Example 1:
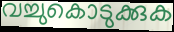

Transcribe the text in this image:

വച്ചുകൊടുക്കുക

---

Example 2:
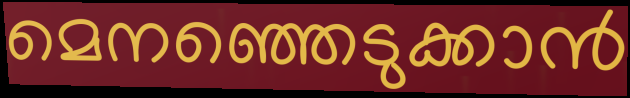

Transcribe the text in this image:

മെനഞ്ഞെടുക്കാൻ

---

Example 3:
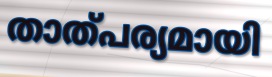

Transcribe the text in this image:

താത്പര്യമായി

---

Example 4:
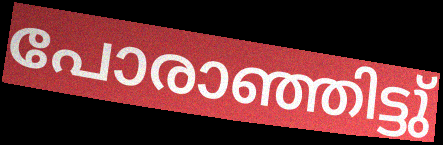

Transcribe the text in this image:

പോരാഞ്ഞിട്ടു്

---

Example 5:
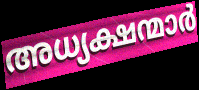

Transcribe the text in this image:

അധ്യക്ഷന്മാർ